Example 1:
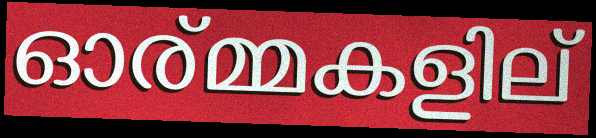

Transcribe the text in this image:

ഓര്മ്മകളില്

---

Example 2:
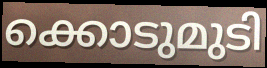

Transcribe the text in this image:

ക്കൊടുമുടി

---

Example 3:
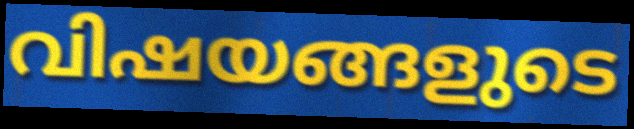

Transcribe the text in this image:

വിഷയങ്ങളുടെ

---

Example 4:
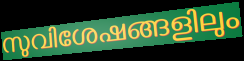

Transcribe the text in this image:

സുവിശേഷങ്ങളിലും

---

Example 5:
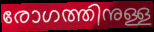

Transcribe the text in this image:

രോഗത്തിനുള്ള